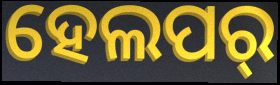
ହେଲପର୍